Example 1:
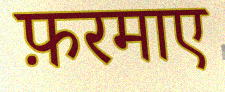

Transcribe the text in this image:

फ़रमाए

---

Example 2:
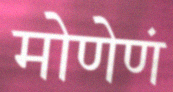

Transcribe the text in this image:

मोणेणं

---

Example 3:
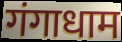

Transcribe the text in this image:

गंगाधाम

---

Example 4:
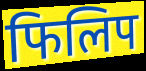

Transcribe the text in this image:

फिलिप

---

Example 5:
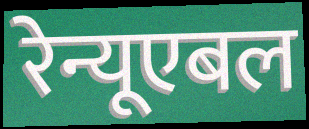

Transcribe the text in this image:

रेन्यूएबल